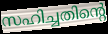
സഹിച്ചതിന്റെ